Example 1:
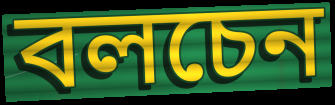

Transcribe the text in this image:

বলচেন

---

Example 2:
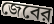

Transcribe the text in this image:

জেবের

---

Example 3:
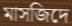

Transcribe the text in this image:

মাসজিদে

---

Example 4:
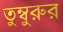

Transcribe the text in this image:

তুম্বুরুর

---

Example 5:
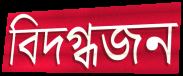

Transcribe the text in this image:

বিদগ্ধজন